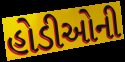
હોડીઓની